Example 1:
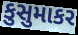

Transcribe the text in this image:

કુસુમાકર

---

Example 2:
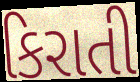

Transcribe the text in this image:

કિરાતી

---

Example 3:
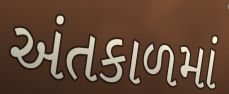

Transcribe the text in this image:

અંતકાળમાં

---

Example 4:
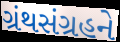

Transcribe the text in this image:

ગ્રંથસંગ્રહને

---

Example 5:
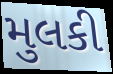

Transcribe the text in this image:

મુલકી